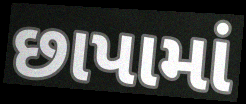
છાપામાં